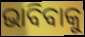
ଭାବିବାକୁ